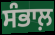
ਸੰਭਾਲ਼